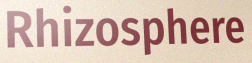
Rhizosphere